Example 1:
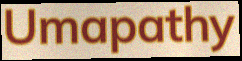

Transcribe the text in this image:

Umapathy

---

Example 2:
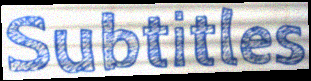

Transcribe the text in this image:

Subtitles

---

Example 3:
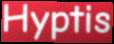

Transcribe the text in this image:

Hyptis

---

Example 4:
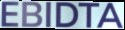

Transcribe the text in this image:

EBIDTA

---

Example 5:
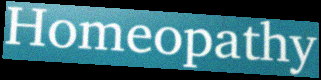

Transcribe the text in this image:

Homeopathy